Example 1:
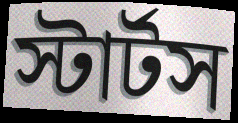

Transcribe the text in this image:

স্টার্টস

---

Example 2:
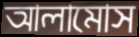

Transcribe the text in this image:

আলামোস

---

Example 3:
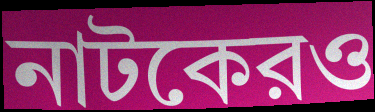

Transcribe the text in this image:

নাটকেরও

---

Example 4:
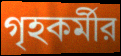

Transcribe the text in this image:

গৃহকর্মীর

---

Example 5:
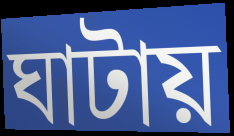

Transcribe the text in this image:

ঘাটায়